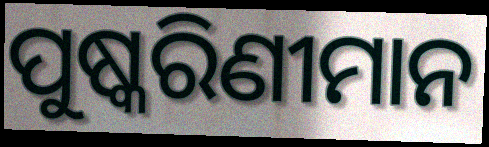
ପୁଷ୍କରିଣୀମାନ